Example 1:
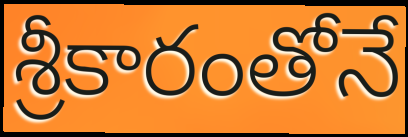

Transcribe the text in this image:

శ్రీకారంతోనే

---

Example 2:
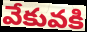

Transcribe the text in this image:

వేకువకి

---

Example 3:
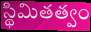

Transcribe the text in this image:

స్థిమితత్వం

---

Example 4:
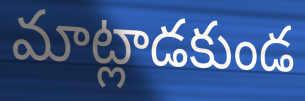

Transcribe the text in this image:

మాట్లాడకుండ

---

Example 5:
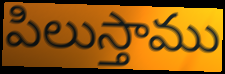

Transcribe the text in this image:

పిలుస్తాము